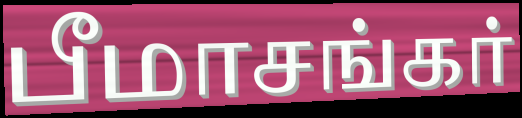
பீமாசங்கர்